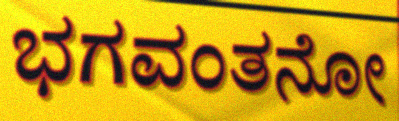
ಭಗವಂತನೋ